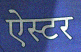
ऐस्टर